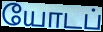
யோடப்